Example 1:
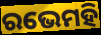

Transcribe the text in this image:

ରଭେମହି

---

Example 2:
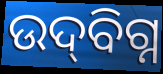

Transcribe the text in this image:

ଉଦ୍‌ବିଗ୍ନ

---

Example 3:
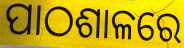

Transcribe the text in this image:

ପାଠଶାଳରେ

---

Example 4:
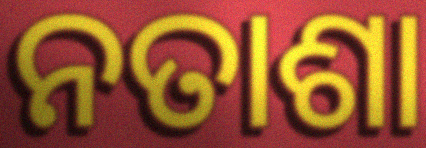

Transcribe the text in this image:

ନତାଶା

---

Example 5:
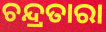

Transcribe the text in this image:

ଚନ୍ଦ୍ରତାରା